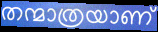
തന്മാത്രയാണ്